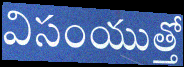
విసంయుత్తో